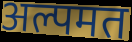
अल्पमत